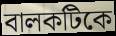
বালকটিকে